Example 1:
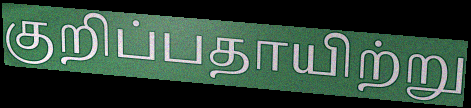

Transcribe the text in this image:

குறிப்பதாயிற்று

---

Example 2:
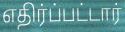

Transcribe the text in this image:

எதிர்ப்பட்டார்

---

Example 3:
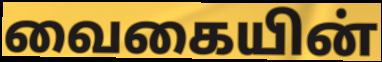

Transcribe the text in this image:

வைகையின்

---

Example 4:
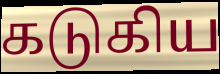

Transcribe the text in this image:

கடுகிய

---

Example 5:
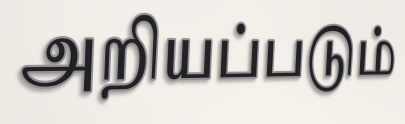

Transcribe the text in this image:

அறியப்படும்